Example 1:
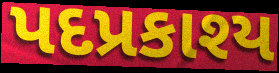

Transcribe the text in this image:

પદપ્રકાશ્ય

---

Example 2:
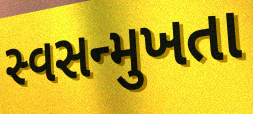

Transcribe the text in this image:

સ્વસન્મુખતા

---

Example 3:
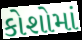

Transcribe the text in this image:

કોશોમાં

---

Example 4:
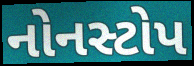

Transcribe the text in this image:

નોનસ્ટોપ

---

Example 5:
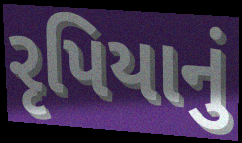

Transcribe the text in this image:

રૃપિયાનું